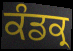
ਕੰਡਕ੍ਰ